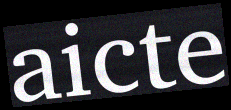
aicte